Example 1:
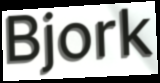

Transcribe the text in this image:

Bjork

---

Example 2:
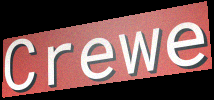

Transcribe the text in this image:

Crewe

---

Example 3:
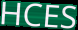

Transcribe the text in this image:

HCES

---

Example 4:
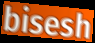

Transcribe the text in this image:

bisesh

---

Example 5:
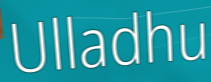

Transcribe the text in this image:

Ulladhu